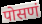
पोसणं